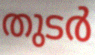
തുടർ